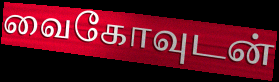
வைகோவுடன்